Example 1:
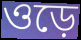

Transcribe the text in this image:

ওড়ে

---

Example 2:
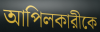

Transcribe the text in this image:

আপিলকারীকে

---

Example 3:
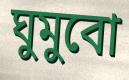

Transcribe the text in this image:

ঘুমুবো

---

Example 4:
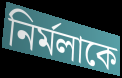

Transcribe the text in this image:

নির্মলাকে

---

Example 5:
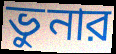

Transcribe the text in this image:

ভুনার